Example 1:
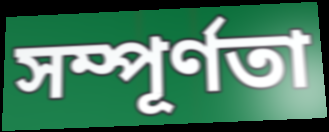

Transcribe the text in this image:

সম্পূর্ণতা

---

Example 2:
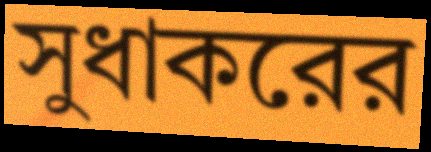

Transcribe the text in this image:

সুধাকরের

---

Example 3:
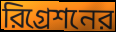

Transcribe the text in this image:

রিগ্রেশনের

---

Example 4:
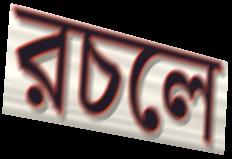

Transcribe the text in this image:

রচলে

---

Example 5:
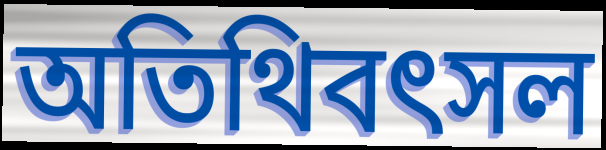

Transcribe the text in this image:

অতিথিবৎসল